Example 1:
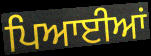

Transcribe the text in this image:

ਪਿਆਈਆਂ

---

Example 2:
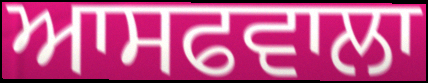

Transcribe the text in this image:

ਆਸਫਵਾਲਾ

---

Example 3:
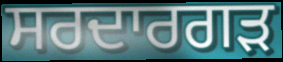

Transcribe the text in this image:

ਸਰਦਾਰਗੜ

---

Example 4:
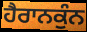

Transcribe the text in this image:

ਹੈਰਾਨਕੁੰਨ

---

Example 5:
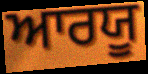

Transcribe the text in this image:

ਆਰਯੂ